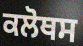
ਕਲੋਥਸ